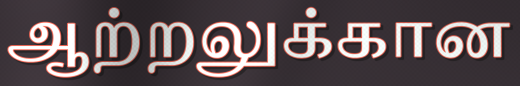
ஆற்றலுக்கான